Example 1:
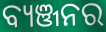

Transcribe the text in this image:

ବ୍ୟଞ୍ଜନର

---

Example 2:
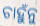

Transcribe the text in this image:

ଚାହୁଁନୁ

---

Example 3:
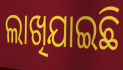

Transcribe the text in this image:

ଲାଖିଯାଇଛି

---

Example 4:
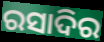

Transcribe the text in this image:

ରସାଦିର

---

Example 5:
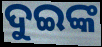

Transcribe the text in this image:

ଦୁଇଙ୍କ